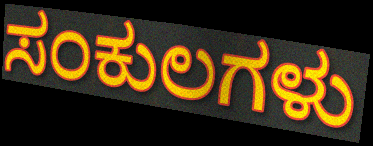
ಸಂಕುಲಗಳು